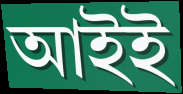
আইই